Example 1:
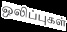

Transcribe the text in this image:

ஒலிப்புகள்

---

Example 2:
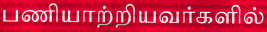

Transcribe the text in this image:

பணியாற்றியவர்களில்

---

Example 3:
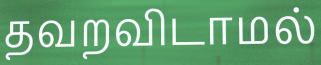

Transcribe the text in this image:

தவறவிடாமல்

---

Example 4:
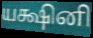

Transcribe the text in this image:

யக்ஷினி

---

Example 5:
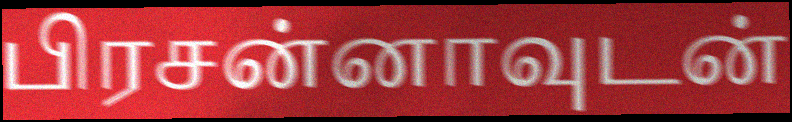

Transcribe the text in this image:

பிரசன்னாவுடன்